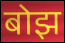
बोझ